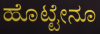
ಹೊಟ್ಟೇನೂ